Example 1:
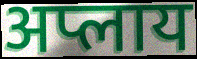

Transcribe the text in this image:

अप्लाय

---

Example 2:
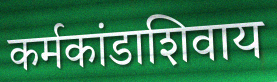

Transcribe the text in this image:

कर्मकांडाशिवाय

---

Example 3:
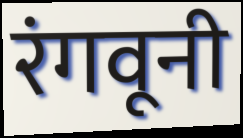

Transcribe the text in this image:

रंगवूनी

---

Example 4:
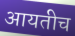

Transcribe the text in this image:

आयतीच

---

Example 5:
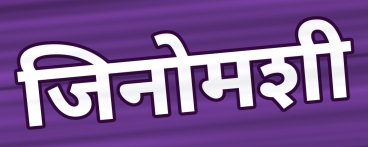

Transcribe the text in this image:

जिनोमशी